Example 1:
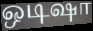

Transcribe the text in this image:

ஒடிஷா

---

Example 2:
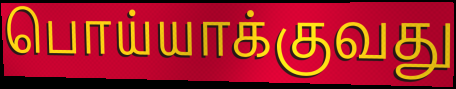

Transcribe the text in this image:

பொய்யாக்குவது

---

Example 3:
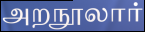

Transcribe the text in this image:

அறநூலார்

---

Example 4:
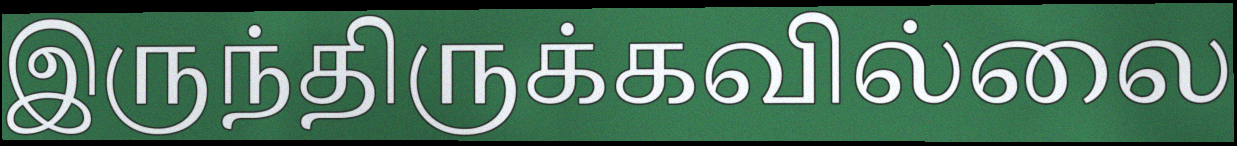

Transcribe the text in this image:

இருந்திருக்கவில்லை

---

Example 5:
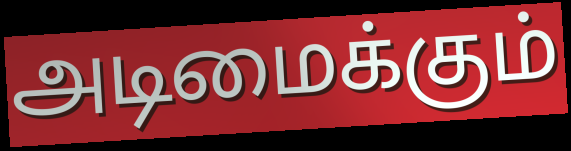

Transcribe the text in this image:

அடிமைக்கும்